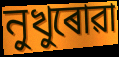
নুখুৰোৱা